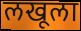
लखूला